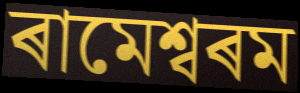
ৰামেশ্বৰম